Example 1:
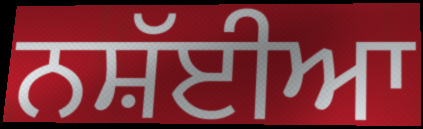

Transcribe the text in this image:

ਨਸ਼ੱਈਆ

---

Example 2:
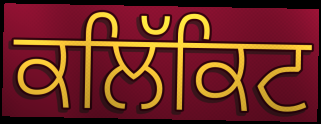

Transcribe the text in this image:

ਕਲਿੱਕਿਟ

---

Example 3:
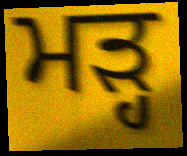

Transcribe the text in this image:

ਮੜ੍ਹ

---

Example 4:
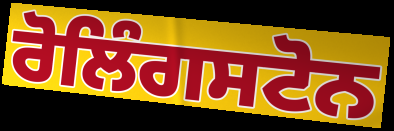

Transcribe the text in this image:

ਰੋਲਿੰਗਸਟੋਨ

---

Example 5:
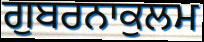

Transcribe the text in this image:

ਗੁਬਰਨਾਕੁਲਮ